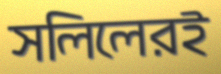
সলিলেরই